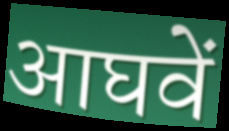
आघवें